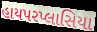
હાયપરપ્લાસિયા